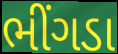
ભીંગડા